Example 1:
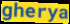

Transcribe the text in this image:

gherya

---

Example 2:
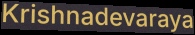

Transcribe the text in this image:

Krishnadevaraya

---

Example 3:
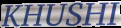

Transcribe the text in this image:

KHUSHI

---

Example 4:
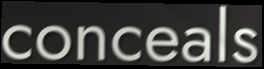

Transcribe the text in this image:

conceals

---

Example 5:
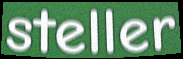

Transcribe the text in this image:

steller